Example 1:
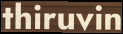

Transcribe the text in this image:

thiruvin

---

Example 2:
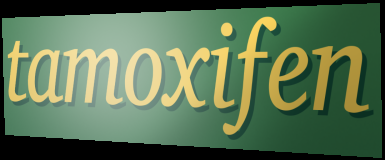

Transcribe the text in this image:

tamoxifen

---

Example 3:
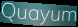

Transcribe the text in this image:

Quayum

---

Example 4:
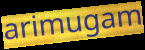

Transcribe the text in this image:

arimugam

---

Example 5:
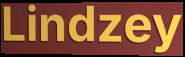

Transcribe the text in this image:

Lindzey